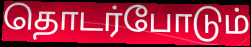
தொடர்போடும்